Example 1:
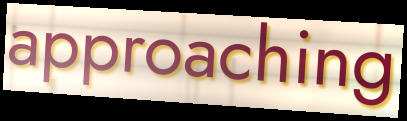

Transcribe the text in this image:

approaching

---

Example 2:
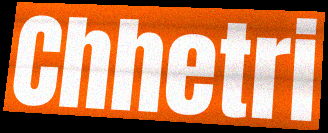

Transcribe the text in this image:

Chhetri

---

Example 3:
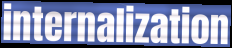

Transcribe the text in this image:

internalization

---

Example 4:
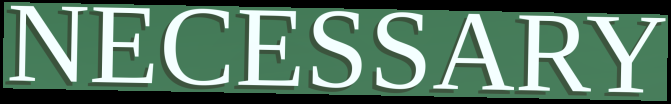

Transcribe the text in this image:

NECESSARY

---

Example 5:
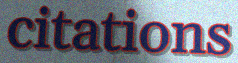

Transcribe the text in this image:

citations